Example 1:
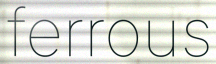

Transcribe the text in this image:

ferrous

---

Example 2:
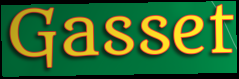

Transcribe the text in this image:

Gasset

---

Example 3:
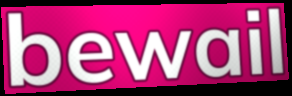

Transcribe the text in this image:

bewail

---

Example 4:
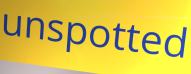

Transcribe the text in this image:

unspotted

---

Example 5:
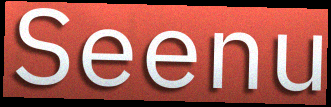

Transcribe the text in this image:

Seenu